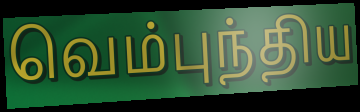
வெம்புந்திய